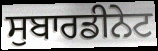
ਸੁਬਾਰਡੀਨੇਟ